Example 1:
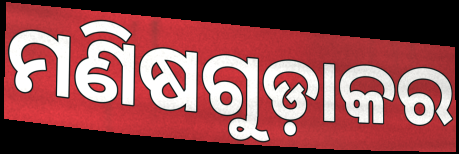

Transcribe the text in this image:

ମଣିଷଗୁଡ଼ାକର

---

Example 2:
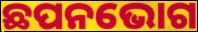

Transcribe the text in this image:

ଛପନଭୋଗ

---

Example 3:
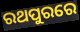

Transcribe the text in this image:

ରଥପୁରରେ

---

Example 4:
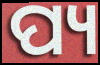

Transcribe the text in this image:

ପ୍ୟ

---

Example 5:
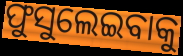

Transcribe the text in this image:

ଫୁସୁଲେଇବାକୁ